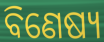
ବିଣେଷ୍ୟ